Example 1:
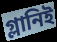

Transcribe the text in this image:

গ্লানিই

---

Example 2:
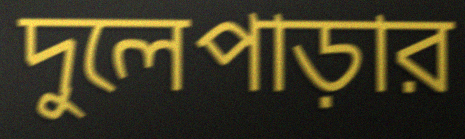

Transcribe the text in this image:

দুলেপাড়ার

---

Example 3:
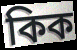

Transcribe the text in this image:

কিক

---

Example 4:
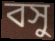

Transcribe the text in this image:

বসু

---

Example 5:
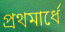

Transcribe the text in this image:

প্রথমার্ধে